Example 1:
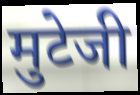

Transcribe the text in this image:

मुटेजी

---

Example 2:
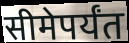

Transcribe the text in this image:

सीमेपर्यंत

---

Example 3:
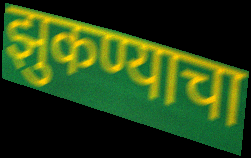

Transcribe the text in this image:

झुकण्याचा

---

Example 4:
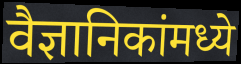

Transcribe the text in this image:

वैज्ञानिकांमध्ये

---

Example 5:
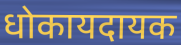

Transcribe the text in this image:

धोकायदायक